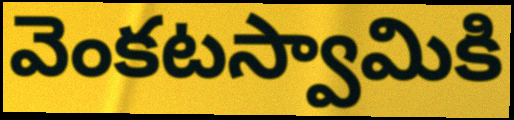
వెంకటస్వామికి